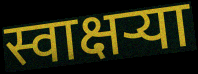
स्वाक्षऱ्या